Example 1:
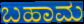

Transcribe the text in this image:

ಬಹಾಮ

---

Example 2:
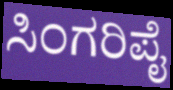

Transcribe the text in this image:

ಸಿಂಗರಿಪೈ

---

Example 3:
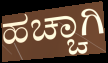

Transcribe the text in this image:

ಹಚ್ಚಾಗಿ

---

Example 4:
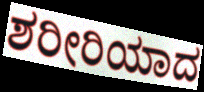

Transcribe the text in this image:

ಶರೀರಿಯಾದ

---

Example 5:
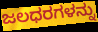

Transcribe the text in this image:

ಜಲಧರಗಳನ್ನು